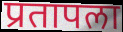
प्रतापला